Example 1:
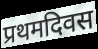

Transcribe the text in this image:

प्रथमदिवस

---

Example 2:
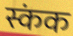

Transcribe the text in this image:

स्कंक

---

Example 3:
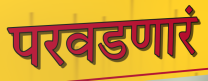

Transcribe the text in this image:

परवडणारं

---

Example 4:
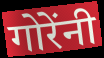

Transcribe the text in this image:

गोरेंनी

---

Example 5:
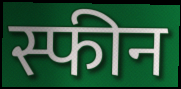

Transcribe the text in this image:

स्फीन